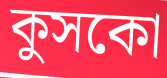
কুসকো